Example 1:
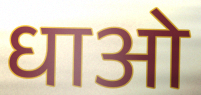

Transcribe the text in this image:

धाओ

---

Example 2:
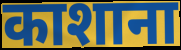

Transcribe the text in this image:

काशाना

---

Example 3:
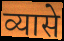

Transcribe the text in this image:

व्यासे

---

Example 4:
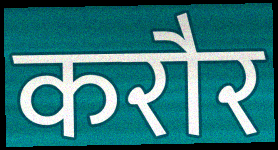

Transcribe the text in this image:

करौर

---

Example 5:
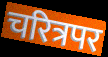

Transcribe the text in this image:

चरित्रपर